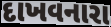
દાખવનારા